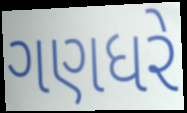
ગણધરે